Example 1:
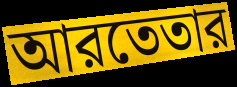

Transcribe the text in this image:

আরতেতার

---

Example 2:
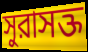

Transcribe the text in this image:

সুরাসক্ত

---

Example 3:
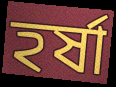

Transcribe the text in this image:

হর্ষা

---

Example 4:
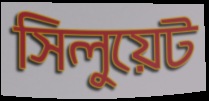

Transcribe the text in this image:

সিলুয়েট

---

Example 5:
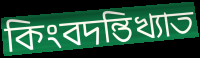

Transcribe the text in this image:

কিংবদন্তিখ্যাত